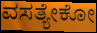
ವಸತ್ಯೇಕೋ